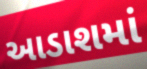
આડાશમાં